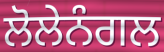
ਲੋਲੇਨੰਗਲ